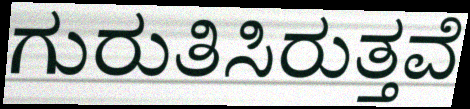
ಗುರುತಿಸಿರುತ್ತವೆ